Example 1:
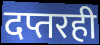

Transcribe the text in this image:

दप्तरही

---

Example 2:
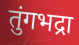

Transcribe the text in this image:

तुंगभद्रा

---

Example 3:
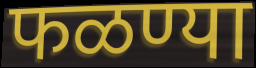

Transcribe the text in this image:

फळण्या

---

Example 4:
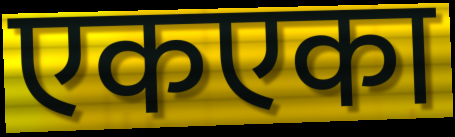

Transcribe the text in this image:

एकएका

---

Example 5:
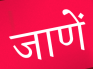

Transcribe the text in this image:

जाणें